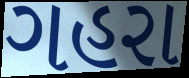
ગહરા